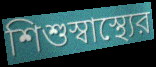
শিশুস্বাস্থ্যের